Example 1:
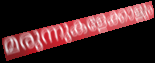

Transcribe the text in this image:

മരുന്നുകളേക്കാളും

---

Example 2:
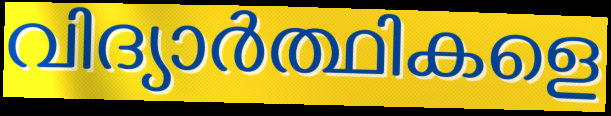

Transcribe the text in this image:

വിദ്യാർത്ഥികളെ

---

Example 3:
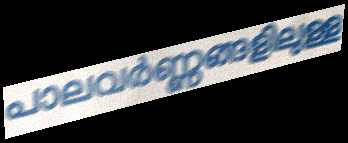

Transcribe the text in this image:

പാലവർണ്ണങ്ങളിലുള്ള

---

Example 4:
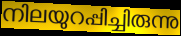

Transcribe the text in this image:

നിലയുറപ്പിച്ചിരുന്നു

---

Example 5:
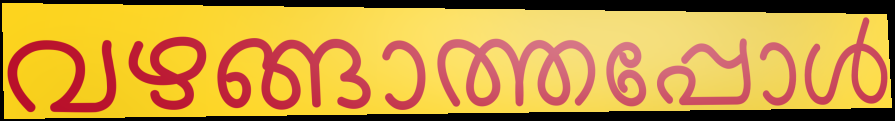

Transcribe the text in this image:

വഴങ്ങാത്തപ്പോൾ